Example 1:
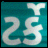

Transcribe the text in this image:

ટર્કે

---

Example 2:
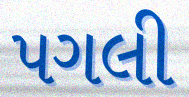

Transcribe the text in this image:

પગલી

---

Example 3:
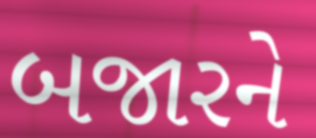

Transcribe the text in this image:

બજારને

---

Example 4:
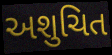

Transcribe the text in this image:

અશુચિત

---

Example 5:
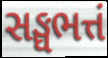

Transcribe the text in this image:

સઙ્ઘભત્તં